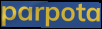
parpota